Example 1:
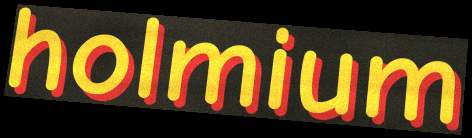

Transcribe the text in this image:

holmium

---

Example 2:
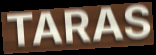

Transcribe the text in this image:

TARAS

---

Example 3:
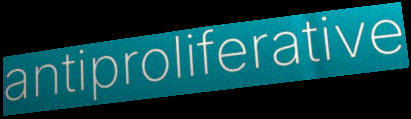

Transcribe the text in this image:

antiproliferative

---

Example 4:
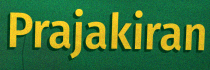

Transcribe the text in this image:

Prajakiran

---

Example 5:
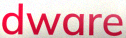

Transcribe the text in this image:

dware